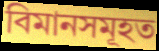
বিমানসমূহত